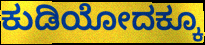
ಕುಡಿಯೋದಕ್ಕೂ